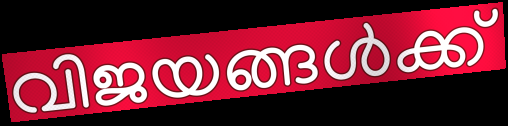
വിജയങ്ങൾക്ക്